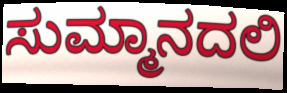
ಸುಮ್ಮಾನದಲಿ